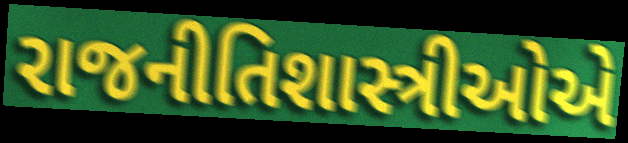
રાજનીતિશાસ્ત્રીઓએ